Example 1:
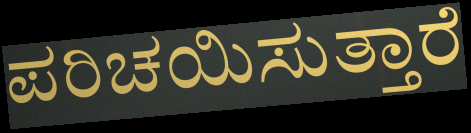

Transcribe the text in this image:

ಪರಿಚಯಿಸುತ್ತಾರೆ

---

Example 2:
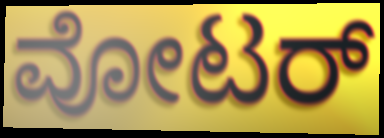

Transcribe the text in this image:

ವೋಟರ್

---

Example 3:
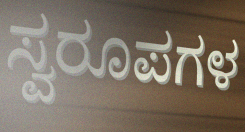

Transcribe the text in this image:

ಸ್ವರೂಪಗಳ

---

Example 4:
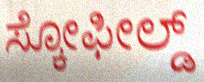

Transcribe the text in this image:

ಸ್ಕೋಫೀಲ್ಡ್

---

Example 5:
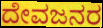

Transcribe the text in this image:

ದೇವಜನರ